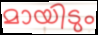
മായിടും